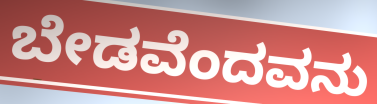
ಬೇಡವೆಂದವನು